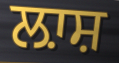
ਲ਼ਾਸ਼